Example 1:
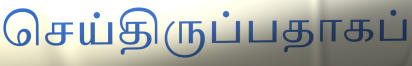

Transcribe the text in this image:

செய்திருப்பதாகப்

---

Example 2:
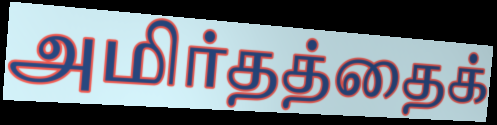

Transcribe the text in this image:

அமிர்தத்தைக்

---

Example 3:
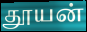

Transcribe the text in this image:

தூயன்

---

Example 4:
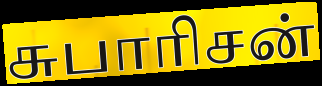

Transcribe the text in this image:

சுபாரிசன்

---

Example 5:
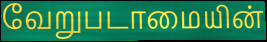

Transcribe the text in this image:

வேறுபடாமையின்